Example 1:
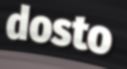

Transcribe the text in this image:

dosto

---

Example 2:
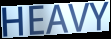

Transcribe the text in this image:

HEAVY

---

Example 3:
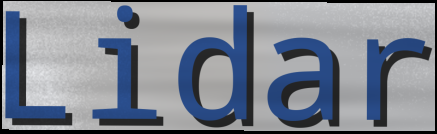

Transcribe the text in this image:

Lidar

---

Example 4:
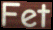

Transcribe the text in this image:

Fet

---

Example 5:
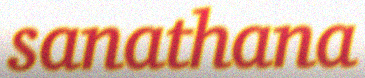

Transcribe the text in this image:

sanathana